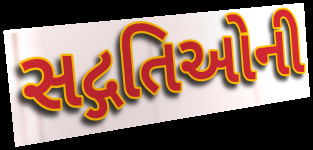
સદ્ગતિઓની